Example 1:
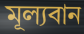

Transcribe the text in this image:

মূল্যবান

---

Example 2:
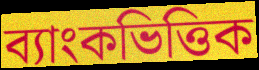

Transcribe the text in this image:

ব্যাংকভিত্তিক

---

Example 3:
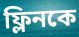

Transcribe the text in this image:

ফ্লিনকে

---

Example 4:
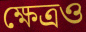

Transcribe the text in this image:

ক্ষেত্রও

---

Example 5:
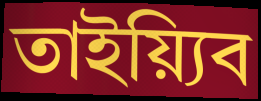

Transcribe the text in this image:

তাইয়্যিব